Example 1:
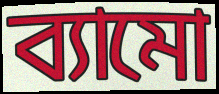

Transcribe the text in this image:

ব্যামো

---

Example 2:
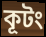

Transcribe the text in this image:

কূটং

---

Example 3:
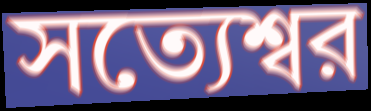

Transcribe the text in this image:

সত্যেশ্বর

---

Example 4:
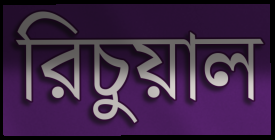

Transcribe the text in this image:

রিচুয়াল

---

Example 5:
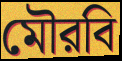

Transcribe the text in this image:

মৌরবি